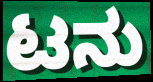
ಟನು